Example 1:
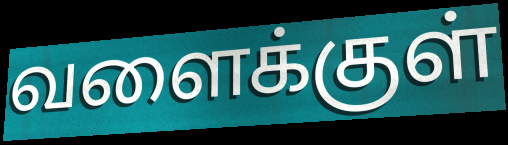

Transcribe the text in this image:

வளைக்குள்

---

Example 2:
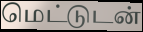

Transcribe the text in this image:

மெட்டுடன்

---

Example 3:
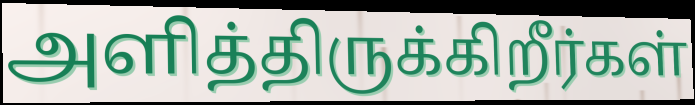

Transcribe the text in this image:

அளித்திருக்கிறீர்கள்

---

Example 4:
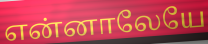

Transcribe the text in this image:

என்னாலேயே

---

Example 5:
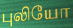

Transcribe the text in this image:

புலியோ